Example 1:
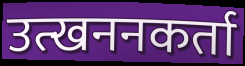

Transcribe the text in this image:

उत्खननकर्ता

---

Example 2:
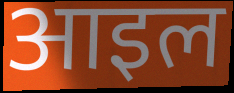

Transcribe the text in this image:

आइल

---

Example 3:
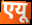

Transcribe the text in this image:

एयू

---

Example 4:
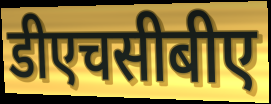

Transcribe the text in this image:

डीएचसीबीए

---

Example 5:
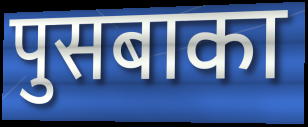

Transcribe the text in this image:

पुसबाका